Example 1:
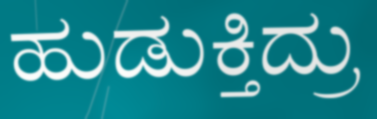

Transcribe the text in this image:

ಹುಡುಕ್ತಿದ್ರು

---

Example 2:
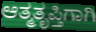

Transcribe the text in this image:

ಆತ್ಮತೃಪ್ತಿಗಾಗಿ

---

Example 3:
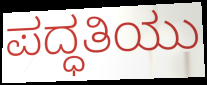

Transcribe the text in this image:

ಪದ್ಧತಿಯು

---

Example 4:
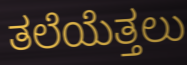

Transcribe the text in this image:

ತಲೆಯೆತ್ತಲು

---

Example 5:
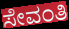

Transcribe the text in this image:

ಸೇವಂತಿ